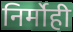
निर्मोही